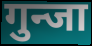
गुन्जा